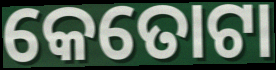
କେତୋଟା